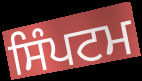
ਸਿੰਪਟਮ